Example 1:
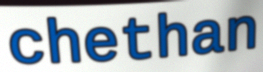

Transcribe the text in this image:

chethan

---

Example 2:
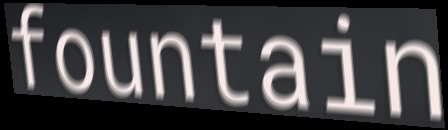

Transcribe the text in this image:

fountain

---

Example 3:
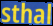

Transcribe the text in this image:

sthal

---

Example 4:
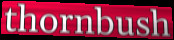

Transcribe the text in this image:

thornbush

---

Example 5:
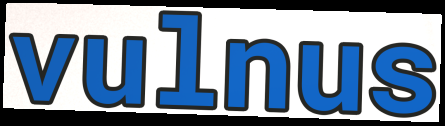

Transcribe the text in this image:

vulnus